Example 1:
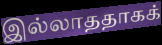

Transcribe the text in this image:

இல்லாததாகக்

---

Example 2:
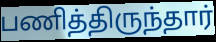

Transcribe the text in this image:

பணித்திருந்தார்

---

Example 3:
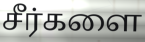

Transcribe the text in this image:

சீர்களை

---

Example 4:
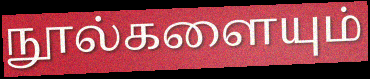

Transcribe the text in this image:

நூல்களையும்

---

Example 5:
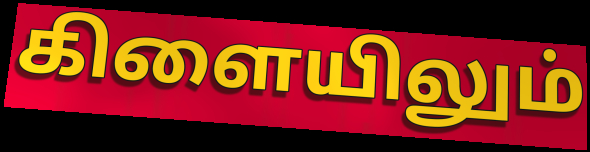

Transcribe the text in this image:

கிளையிலும்